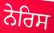
ਨੇਰਿਸ